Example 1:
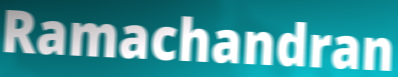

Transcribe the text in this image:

Ramachandran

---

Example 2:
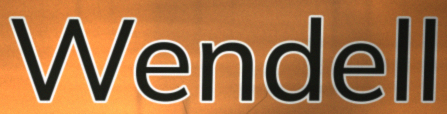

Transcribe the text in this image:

Wendell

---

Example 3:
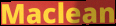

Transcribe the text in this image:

Maclean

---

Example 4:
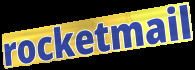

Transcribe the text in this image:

rocketmail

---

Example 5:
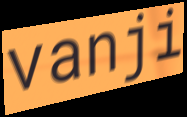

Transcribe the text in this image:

vanji